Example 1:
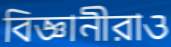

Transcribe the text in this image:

বিজ্ঞানীরাও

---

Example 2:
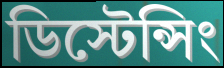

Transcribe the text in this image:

ডিস্টেন্সিং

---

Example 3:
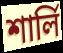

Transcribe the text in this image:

শার্লি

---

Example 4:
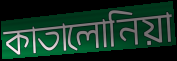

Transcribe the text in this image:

কাতালোনিয়া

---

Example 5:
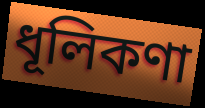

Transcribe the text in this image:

ধূলিকণা